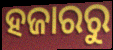
ହଜାରରୁ